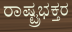
ರಾಷ್ಟ್ರಭಕ್ತರ